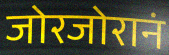
जोरजोरानं